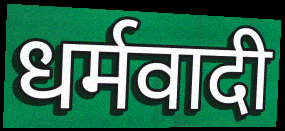
धर्मवादी